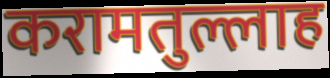
करामतुल्लाह